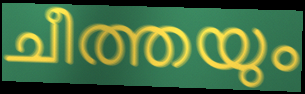
ചീത്തയും